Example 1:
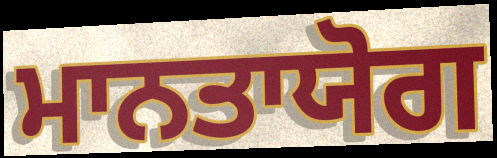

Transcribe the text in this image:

ਮਾਨਤਾਯੋਗ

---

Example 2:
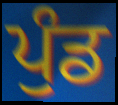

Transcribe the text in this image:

ਪੁੰਡ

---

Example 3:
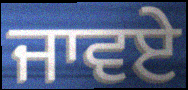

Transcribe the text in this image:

ਜਾਵਏ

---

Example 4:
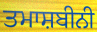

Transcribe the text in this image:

ਤਮਾਸ਼ਬੀਨੀ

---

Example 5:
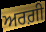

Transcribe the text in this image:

ਅਰਗ਼ੀ